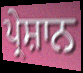
ਪ੍ਰੇਸ਼ਾਨ